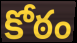
కోఠం